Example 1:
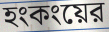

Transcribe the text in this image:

হংকংয়ের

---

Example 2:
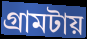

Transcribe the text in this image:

গ্রামটায়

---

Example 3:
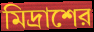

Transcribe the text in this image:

মিদ্রাশের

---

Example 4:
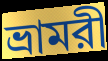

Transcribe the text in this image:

ভ্রামরী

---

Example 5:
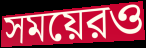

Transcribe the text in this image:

সময়েরও